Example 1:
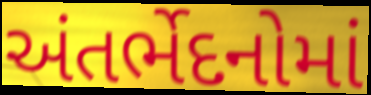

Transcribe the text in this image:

અંતર્ભેદનોમાં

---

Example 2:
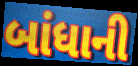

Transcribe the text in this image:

બાંધાની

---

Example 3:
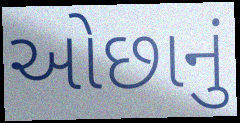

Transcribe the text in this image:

ઓછાનું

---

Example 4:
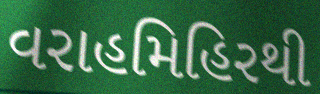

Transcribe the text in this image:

વરાહમિહિરથી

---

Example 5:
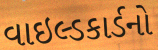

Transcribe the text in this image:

વાઇલ્ડકાર્ડનો